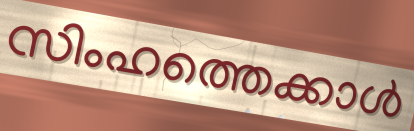
സിംഹത്തെക്കാൾ